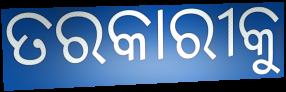
ତରକାରୀକୁ